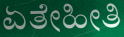
ಏತೇಹೀತಿ